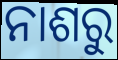
ନାଶରୁ